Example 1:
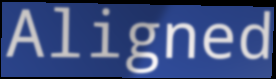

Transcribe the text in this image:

Aligned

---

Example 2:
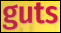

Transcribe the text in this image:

guts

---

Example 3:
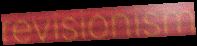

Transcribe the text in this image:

revisionism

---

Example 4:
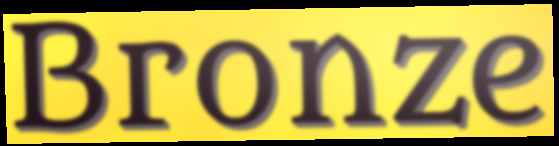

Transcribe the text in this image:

Bronze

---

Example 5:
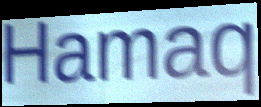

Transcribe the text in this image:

Hamaq